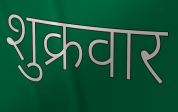
शुक्रवार